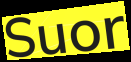
Suor